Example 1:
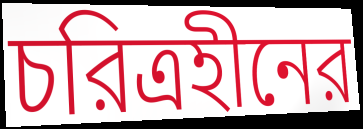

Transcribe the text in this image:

চরিত্রহীনের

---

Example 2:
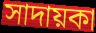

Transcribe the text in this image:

সাদায়কা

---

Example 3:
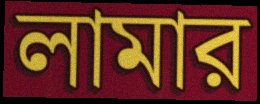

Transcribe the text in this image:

লামার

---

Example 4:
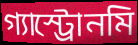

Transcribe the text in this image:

গ্যাস্ট্রোনমি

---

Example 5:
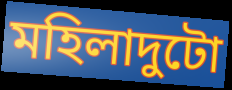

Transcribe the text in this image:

মহিলাদুটো